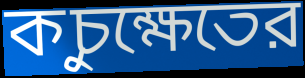
কচুক্ষেতের